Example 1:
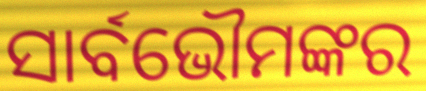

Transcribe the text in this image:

ସାର୍ବଭୌମଙ୍କର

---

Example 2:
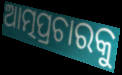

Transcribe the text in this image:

ଆତ୍ମପ୍ରଚାରକୁ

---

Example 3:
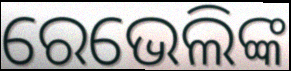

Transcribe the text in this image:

ରେଭେଲିଙ୍କ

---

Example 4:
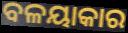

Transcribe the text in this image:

ବଳୟାକାର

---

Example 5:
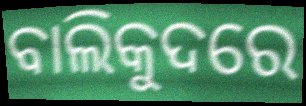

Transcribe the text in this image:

ବାଲିକୁଦରେ